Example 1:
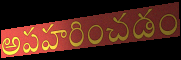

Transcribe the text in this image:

అపహరించడం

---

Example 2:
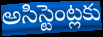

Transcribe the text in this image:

అసిస్టెంట్లకు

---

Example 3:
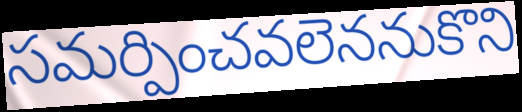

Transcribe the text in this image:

సమర్పించవలెననుకొని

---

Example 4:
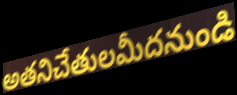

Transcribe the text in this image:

అతనిచేతులమీదనుండి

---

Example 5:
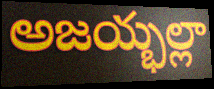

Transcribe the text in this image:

అజయ్భల్లా